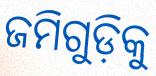
ଜମିଗୁଡ଼ିକୁ